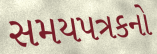
સમયપત્રકનો